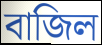
বাজিল